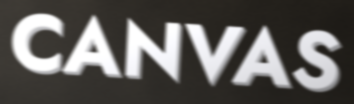
CANVAS